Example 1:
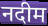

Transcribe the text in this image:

नदीम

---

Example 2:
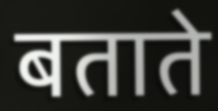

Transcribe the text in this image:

बताते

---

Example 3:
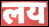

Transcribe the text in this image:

लय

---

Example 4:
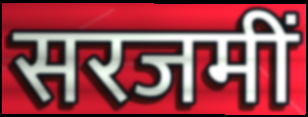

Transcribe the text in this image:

सरजमीं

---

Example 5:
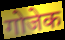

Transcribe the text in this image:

गोजेक